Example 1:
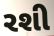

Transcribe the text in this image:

રશી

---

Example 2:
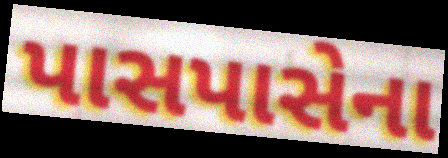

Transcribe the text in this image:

પાસપાસેના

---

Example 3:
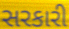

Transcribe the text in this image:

સરકારી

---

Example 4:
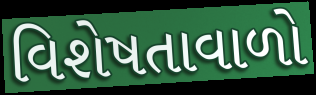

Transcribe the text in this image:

વિશેષતાવાળો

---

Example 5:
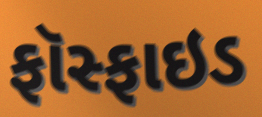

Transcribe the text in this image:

ફૉસ્ફાઇડ